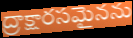
ద్రాక్షారసమైనను